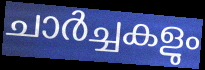
ചാർച്ചകളും